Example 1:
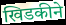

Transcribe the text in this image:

खिडकीने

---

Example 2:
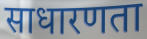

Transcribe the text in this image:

साधारणता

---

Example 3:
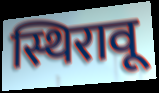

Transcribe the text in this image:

स्थिरावू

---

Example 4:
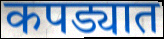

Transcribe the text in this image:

कपड्यात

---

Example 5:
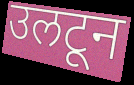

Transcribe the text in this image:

उलटून